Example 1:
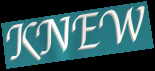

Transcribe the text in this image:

KNEW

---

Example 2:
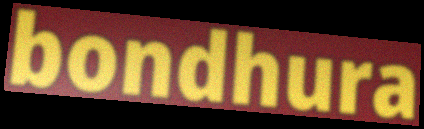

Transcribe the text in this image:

bondhura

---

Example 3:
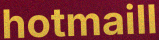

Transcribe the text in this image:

hotmaill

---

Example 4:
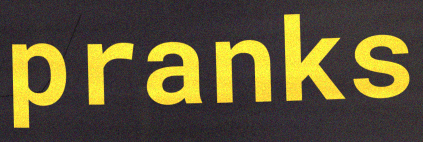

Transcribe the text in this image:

pranks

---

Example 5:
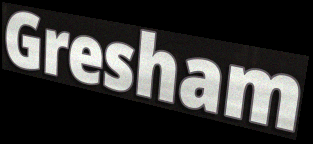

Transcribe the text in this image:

Gresham